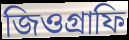
জিওগ্রাফি